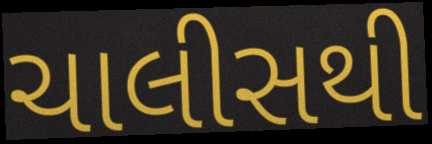
ચાલીસથી